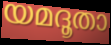
യമദൂതാ